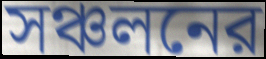
সঞ্চলনের